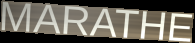
MARATHE